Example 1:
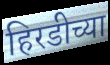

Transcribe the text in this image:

हिरडीच्या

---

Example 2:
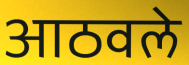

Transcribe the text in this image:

आठवले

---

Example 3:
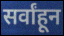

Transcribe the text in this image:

सर्वांहून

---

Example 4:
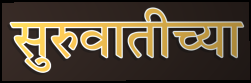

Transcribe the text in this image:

सुरुवातीच्या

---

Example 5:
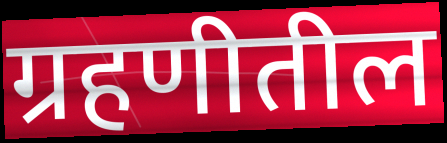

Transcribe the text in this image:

ग्रहणीतील